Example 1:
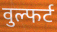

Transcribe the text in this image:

वुल्फर्ट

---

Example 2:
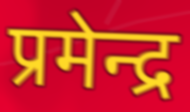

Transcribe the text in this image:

प्रमेन्द्र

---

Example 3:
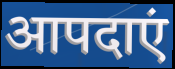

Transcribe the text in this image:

आपदाएं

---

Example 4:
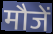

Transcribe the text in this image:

मौजें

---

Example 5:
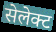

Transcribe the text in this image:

सेलेक्ट